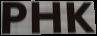
PHK